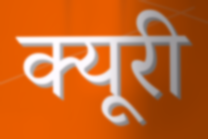
क्यूरी